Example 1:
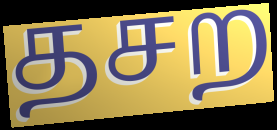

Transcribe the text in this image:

தசற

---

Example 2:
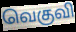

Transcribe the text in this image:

வெகுவி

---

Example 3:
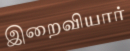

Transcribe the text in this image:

இறைவியார்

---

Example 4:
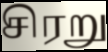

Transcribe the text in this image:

சிரறு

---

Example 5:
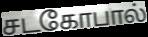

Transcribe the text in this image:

சடகோபால்